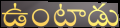
ఉంటాడు